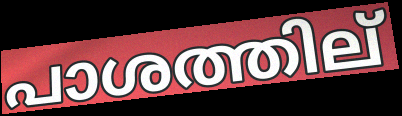
പാശത്തില്